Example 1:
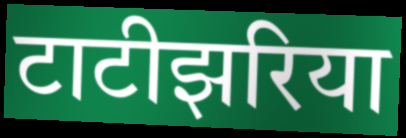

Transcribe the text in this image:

टाटीझरिया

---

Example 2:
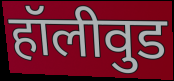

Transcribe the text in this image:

हॉलीवुड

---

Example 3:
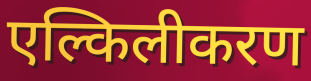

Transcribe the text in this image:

एल्किलीकरण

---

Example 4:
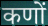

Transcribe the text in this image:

कणों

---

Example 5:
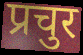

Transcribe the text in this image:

प्रचुर